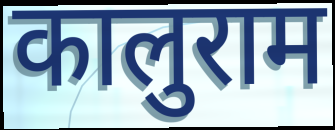
कालुराम